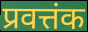
प्रवत्तंक